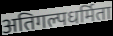
अतिगल्पधर्मिता